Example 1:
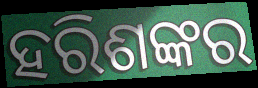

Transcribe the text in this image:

ହରିଶଙ୍କର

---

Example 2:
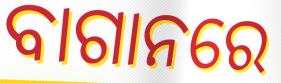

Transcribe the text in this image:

ବାଗାନରେ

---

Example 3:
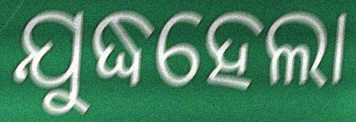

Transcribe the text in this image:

ଯୁଦ୍ଧହେଲା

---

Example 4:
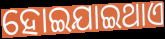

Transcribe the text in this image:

ହୋଇଯାଇଥାଏ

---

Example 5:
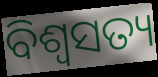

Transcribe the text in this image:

ବିଶ୍ୱସତ୍ୟ